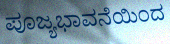
ಪೂಜ್ಯಭಾವನೆಯಿಂದ